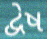
દ્વેષ